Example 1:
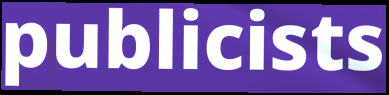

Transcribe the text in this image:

publicists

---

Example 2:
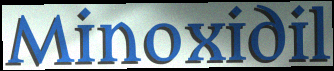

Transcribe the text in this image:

Minoxidil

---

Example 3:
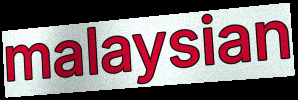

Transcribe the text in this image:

malaysian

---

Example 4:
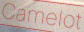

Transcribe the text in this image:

Camelot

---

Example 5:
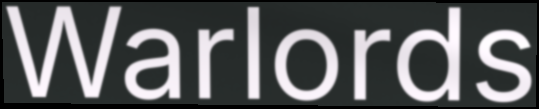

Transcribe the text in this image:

Warlords